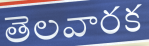
తెలవారక